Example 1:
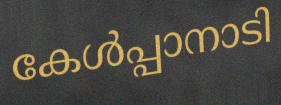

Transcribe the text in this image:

കേൾപ്പാനാടി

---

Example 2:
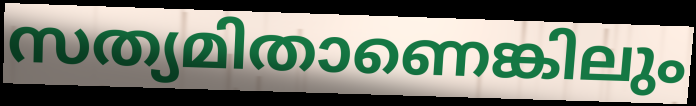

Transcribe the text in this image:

സത്യമിതാണെങ്കിലും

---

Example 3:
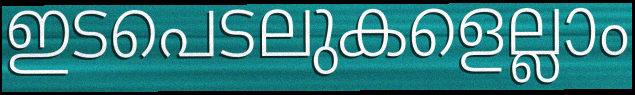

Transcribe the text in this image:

ഇടപെടലുകളെല്ലാം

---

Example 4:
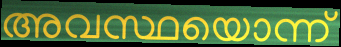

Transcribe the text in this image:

അവസ്ഥയൊന്ന്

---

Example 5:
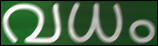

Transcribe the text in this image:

വധം